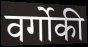
वर्गोकी